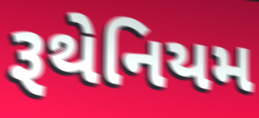
રૂથેનિયમ